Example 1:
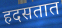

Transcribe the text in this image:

हदसतात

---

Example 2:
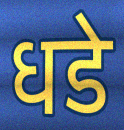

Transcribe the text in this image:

धडे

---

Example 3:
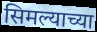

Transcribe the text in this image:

सिमल्याच्या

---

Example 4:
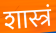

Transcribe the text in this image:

शास्त्रं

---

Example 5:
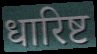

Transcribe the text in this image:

धारिष्ट